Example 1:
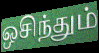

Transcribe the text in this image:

ஒசிந்தும்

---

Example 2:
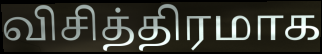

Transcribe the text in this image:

விசித்திரமாக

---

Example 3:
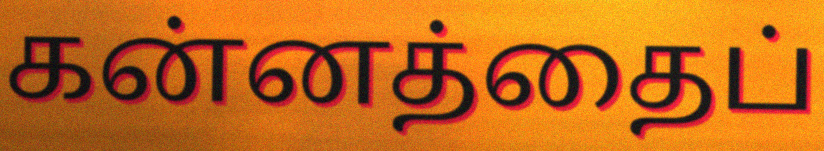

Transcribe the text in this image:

கன்னத்தைப்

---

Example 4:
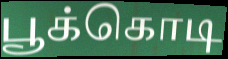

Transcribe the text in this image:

பூக்கொடி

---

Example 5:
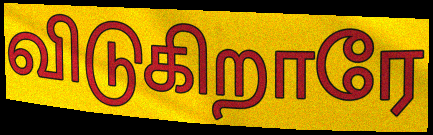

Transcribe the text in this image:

விடுகிறாரே